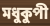
মধুকুপী